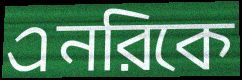
এনরিকে